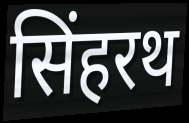
सिंहरथ